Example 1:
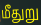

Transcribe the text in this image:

மீதுறு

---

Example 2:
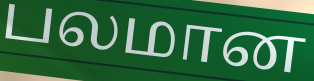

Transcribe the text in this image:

பலமான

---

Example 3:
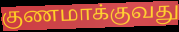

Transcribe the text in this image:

குணமாக்குவது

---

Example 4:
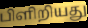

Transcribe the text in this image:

பிளிறியது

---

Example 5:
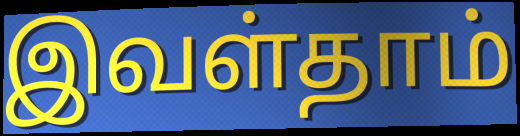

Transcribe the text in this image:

இவள்தாம்